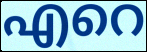
എറെ